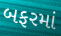
બફરમાં